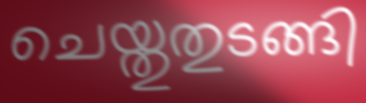
ചെയ്തുതുടങ്ങി